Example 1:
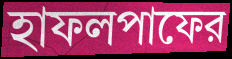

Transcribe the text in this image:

হাফলপাফের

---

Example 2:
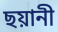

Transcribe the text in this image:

ছয়ানী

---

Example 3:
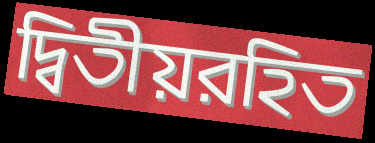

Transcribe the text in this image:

দ্বিতীয়রহিত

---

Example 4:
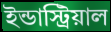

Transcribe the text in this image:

ইন্ডাস্ট্রিয়াল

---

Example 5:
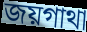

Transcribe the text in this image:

জয়গাথা